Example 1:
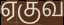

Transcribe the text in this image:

ஏகுவ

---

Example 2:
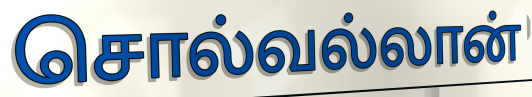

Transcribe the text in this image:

சொல்வல்லான்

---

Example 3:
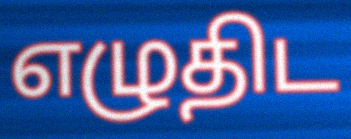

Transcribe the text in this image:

எழுதிட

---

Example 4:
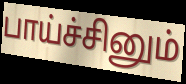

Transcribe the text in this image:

பாய்ச்சினும்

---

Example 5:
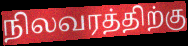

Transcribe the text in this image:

நிலவரத்திற்கு